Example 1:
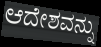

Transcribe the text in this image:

ಆದೇಶವನ್ನು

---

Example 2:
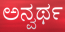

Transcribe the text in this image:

ಅನ್ವರ್ಥ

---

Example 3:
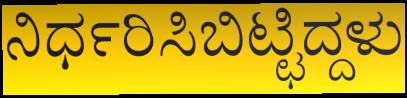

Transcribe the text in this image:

ನಿರ್ಧರಿಸಿಬಿಟ್ಟಿದ್ದಳು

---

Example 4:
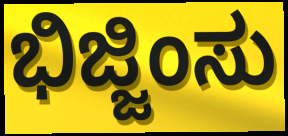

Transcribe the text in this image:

ಭಿಜ್ಜಿಂಸು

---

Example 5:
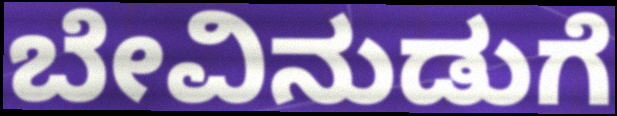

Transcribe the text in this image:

ಬೇವಿನುಡುಗೆ